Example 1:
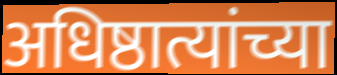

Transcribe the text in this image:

अधिष्ठात्यांच्या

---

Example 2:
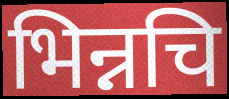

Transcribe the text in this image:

भिन्नचि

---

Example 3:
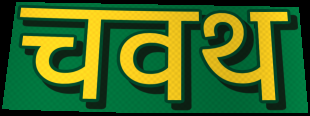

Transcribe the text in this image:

चवथ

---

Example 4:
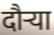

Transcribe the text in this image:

दौऱ्या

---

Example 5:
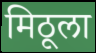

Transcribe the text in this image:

मिठूला